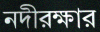
নদীরক্ষার